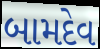
બામદેવ